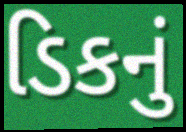
ડિકનું